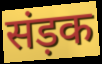
संड़क